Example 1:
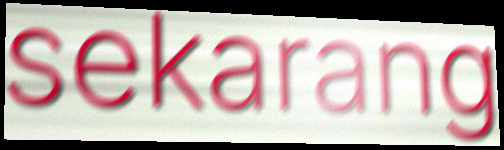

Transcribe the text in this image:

sekarang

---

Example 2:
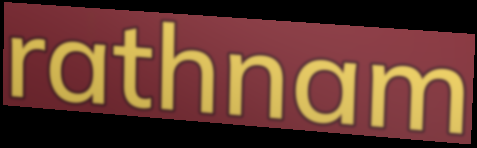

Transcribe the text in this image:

rathnam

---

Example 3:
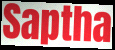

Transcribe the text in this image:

Saptha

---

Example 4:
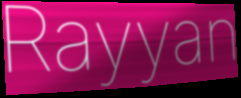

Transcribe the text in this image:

Rayyan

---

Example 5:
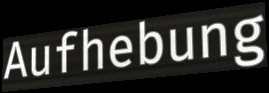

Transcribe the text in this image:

Aufhebung